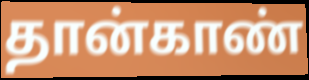
தான்காண்